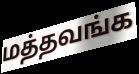
மத்தவங்க